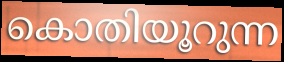
കൊതിയൂറുന്ന